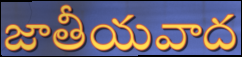
జాతీయవాద